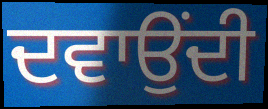
ਦਵਾਉਂਦੀ